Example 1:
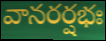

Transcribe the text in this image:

వానరర్షభః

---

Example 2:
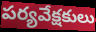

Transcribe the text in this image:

పర్యవేక్షకులు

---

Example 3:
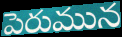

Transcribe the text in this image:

పెరుమున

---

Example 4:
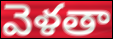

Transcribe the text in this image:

వెళతా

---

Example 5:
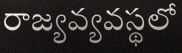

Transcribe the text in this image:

రాజ్యవ్యవస్థలో